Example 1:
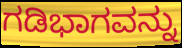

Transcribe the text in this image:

ಗಡಿಭಾಗವನ್ನು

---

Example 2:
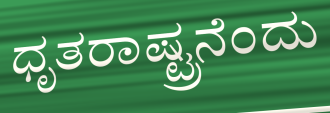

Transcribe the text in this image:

ಧೃತರಾಷ್ಟ್ರನೆಂದು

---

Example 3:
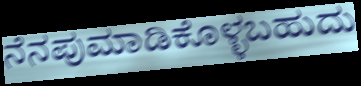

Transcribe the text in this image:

ನೆನಪುಮಾಡಿಕೊಳ್ಳಬಹುದು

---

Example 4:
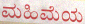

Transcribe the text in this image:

ಮಹಿಮೆಯ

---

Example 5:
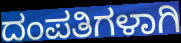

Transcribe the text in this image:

ದಂಪತಿಗಳಾಗಿ